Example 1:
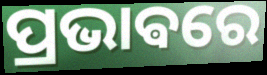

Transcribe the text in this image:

ପ୍ରଭାଵରେ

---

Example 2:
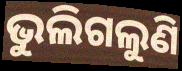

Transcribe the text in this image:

ଭୁଲିଗଲୁଣି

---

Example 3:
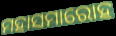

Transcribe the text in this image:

ମହାସମାରୋହ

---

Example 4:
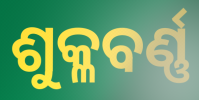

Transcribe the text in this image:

ଶୁକ୍ଳବର୍ଣ୍ଣ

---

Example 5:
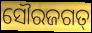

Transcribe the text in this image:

ସୌରଜଗତ୍